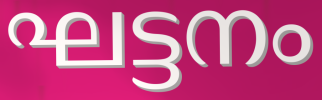
ഘട്ടനം